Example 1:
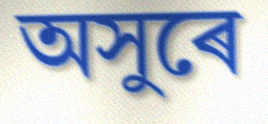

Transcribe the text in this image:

অসুৰে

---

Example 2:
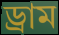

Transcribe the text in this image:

ড্ৰাম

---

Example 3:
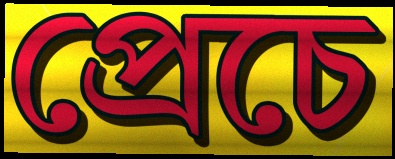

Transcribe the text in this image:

প্ৰেচে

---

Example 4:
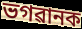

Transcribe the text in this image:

ভগৱানক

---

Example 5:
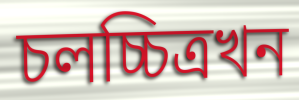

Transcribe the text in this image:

চলচ্চিত্ৰখন